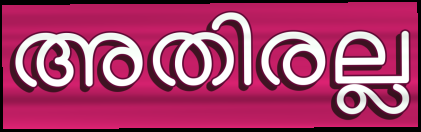
അതിരല്ല